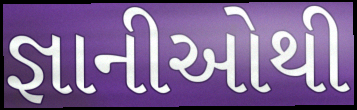
જ્ઞાનીઓથી